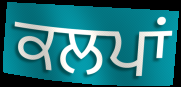
ਕਲਪਾਂ